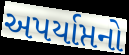
અપર્યાપ્તનો